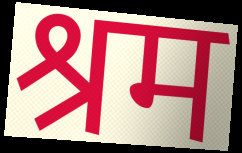
श्रम